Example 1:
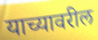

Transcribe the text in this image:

याच्यावरील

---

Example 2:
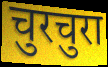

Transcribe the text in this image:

चुरचुरा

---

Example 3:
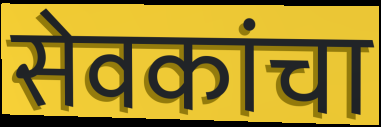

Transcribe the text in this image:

सेवकांचा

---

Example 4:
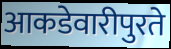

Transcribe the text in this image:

आकडेवारीपुरते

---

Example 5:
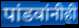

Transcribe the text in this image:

पांडवांनीही